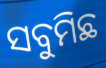
ସବୁମିଛ